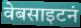
वेबसाइटनं